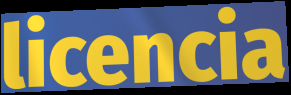
licencia